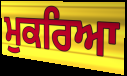
ਮੁਕਰਿਆ